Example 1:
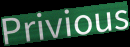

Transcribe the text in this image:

Privious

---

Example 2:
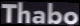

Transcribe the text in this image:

Thabo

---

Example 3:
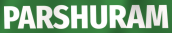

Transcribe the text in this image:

PARSHURAM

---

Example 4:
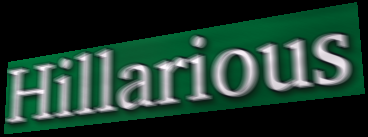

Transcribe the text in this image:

Hillarious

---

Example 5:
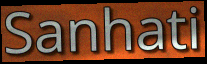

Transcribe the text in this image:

Sanhati